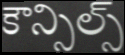
కౌన్సిల్స్